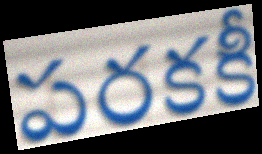
పరకకీ